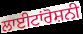
ਲਾਈਟਾਂਰੋਸ਼ਨੀ